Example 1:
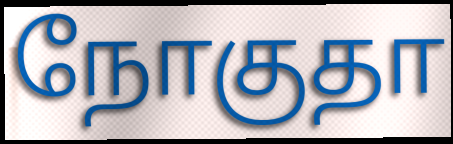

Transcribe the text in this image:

நோகுதா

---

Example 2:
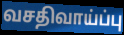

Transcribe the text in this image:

வசதிவாய்ப்பு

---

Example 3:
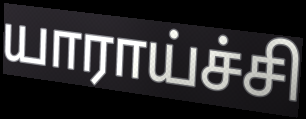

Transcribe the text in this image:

யாராய்ச்சி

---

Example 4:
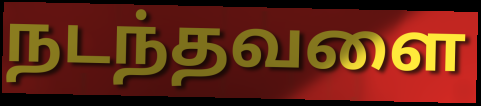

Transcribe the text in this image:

நடந்தவளை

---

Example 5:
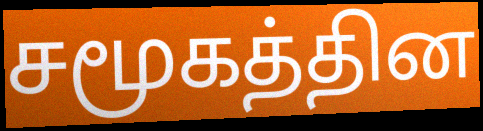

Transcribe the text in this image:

சமூகத்தின